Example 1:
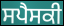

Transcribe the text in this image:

ਸਪੈਸਕੀ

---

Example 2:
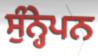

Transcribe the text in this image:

ਸੁੰਨ੍ਹੇਪਨ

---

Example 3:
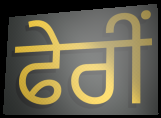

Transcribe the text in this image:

ਫੇਰੀਂ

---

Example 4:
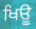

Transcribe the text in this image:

ਖਿਊ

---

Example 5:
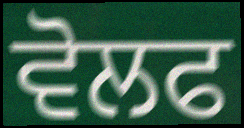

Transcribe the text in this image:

ਵੋਲਫ